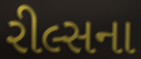
રીલ્સના